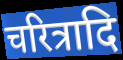
चरित्रादि